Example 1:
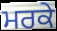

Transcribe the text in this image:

ਮਰਕੇ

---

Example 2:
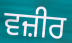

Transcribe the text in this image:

ਵਜ਼ੀਰ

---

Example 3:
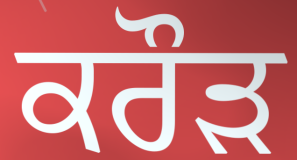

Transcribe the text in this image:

ਕਰੌੜ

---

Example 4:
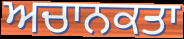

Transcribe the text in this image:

ਅਚਾਨਕਤਾ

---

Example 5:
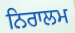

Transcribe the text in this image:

ਨਿਰਾਲਮ